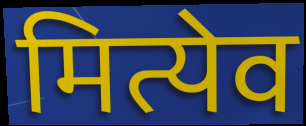
मित्येव